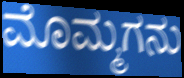
ಮೊಮ್ಮಗನು